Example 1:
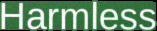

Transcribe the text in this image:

Harmless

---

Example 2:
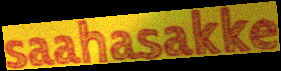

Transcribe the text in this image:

saahasakke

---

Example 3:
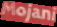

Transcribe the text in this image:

Mojani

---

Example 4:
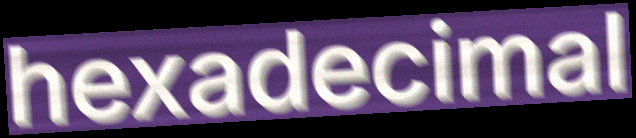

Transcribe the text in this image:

hexadecimal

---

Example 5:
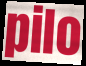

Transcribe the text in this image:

pilo